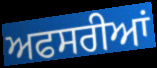
ਅਫਸਰੀਆਂ